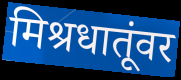
मिश्रधातूंवर